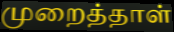
முறைத்தாள்